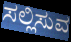
ಸಲ್ಲಿಸುವ